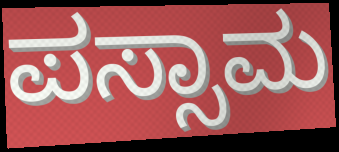
ಪಸ್ಸಾಮ